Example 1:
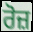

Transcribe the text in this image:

ਰੋਜ਼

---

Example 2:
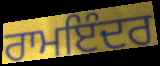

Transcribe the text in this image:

ਰਾਮਇੰਦਰ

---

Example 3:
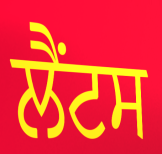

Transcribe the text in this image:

ਲੈਂਟਸ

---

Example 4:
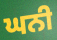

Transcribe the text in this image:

ਘਨੀ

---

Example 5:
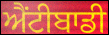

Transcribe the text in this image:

ਐਂਟੀਬਾਡੀ